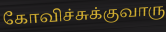
கோவிச்சுக்குவாரு